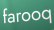
farooq